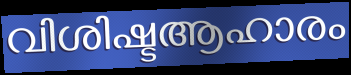
വിശിഷ്ടആഹാരം